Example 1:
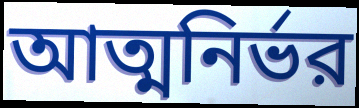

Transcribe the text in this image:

আত্মনির্ভর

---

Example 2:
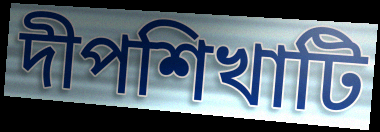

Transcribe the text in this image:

দীপশিখাটি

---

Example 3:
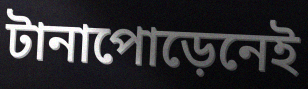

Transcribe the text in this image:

টানাপোড়েনেই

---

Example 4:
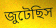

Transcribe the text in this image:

জুটেছিস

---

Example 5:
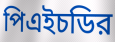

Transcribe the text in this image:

পিএইচডির